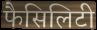
फैसिलिटी